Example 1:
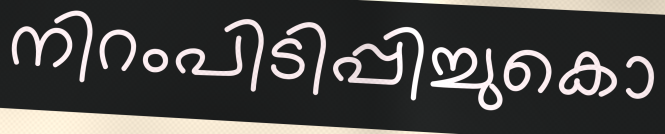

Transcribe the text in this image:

നിറംപിടിപ്പിച്ചുകൊ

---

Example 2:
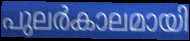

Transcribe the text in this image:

പുലർകാലമായി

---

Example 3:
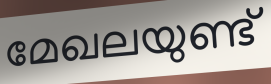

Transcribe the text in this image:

മേഖലയുണ്ട്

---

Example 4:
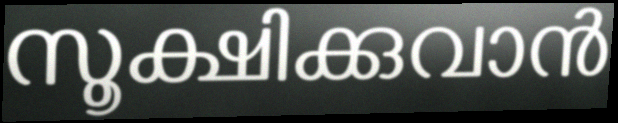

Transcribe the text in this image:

സൂക്ഷിക്കുവാൻ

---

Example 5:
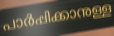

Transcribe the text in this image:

പാർപ്പിക്കാനുള്ള